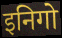
इनिगो